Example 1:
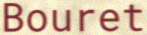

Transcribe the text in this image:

Bouret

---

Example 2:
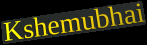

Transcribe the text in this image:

Kshemubhai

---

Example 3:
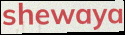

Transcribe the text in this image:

shewaya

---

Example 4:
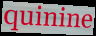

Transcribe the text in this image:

quinine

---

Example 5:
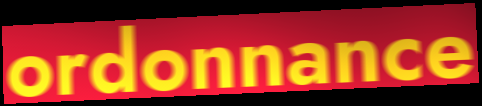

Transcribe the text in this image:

ordonnance